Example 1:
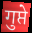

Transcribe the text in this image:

गुप्ते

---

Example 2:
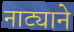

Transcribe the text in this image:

नाट्याने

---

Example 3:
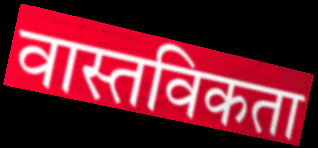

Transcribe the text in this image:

वास्तविकता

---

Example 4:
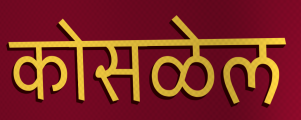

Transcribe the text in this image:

कोसळेल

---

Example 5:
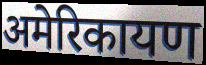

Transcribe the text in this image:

अमेरिकायण